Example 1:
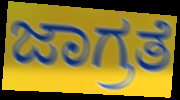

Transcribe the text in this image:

ಜಾಗ್ರತೆ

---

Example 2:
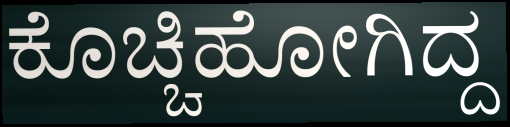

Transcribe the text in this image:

ಕೊಚ್ಚಿಹೋಗಿದ್ದ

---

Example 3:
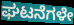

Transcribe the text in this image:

ಘಟನೆಗಳೇ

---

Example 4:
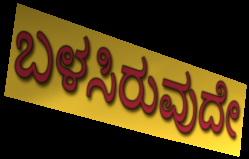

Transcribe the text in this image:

ಬಳಸಿರುವುದೇ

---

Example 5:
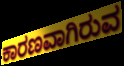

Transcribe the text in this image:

ಕಾರಣವಾಗಿರುವ